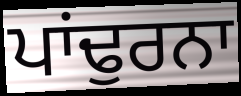
ਪਾਂਢੁਰਨਾ